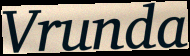
Vrunda